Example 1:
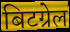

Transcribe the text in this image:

बिटग्रेल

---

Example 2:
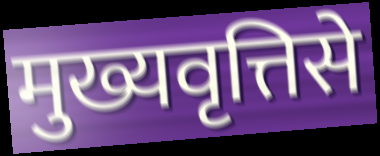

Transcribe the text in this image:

मुख्यवृत्तिसे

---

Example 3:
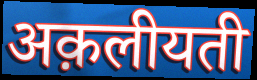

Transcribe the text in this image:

अक़लीयती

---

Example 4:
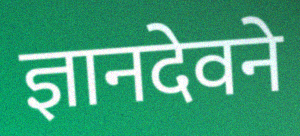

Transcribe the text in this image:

ज्ञानदेवने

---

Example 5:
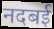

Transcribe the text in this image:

नदबई